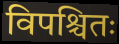
विपश्चितः